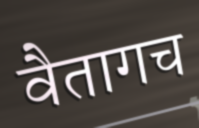
वैतागच